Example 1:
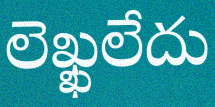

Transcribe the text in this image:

లెఖ్ఖలేదు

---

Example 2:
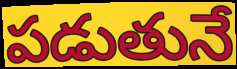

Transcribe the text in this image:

పడుతునే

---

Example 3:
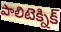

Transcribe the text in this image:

పాలిటెక్నిక్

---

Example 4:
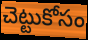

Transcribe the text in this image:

చెట్టుకోసం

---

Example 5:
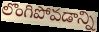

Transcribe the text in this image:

లొంగిపోవడాన్ని